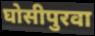
घोसीपुरवा